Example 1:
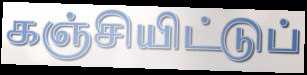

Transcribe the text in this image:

கஞ்சியிட்டுப்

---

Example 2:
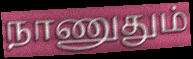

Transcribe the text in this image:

நாணுதும்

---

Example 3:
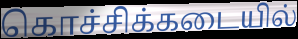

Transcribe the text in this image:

கொச்சிக்கடையில்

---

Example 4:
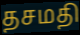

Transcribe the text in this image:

தசமதி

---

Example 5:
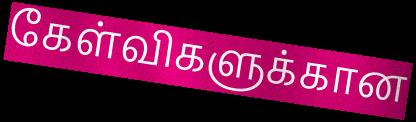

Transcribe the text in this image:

கேள்விகளுக்கான